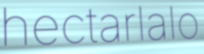
hectarlalo